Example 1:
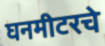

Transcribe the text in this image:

घनमीटरचे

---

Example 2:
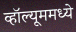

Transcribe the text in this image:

व्हॉल्यूममध्ये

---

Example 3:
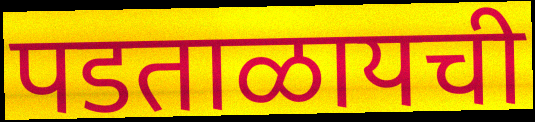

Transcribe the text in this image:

पडताळायची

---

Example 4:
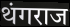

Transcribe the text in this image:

थंगराज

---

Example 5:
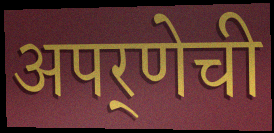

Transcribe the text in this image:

अपर्णेची